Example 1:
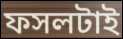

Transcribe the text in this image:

ফসলটাই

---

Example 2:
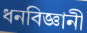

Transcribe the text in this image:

ধনবিজ্ঞানী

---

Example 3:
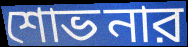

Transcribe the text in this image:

শোভনার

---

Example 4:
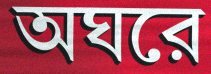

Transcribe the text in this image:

অঘরে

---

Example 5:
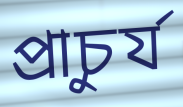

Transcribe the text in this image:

প্রাচুর্য